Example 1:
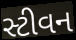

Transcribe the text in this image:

સ્ટીવન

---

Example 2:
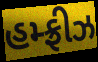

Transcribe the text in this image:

હમ્ફ્રીઝ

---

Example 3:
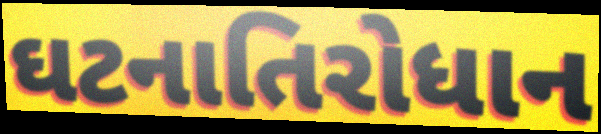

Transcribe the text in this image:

ઘટનાતિરોધાન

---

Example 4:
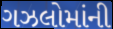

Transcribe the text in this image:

ગઝલોમાંની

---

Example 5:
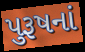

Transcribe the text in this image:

પુરૂષનાં